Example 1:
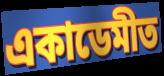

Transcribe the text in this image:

একাডেমীত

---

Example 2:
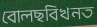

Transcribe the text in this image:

বোলছবিখনত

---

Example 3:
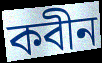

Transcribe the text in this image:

কবীন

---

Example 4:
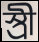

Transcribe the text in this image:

স্ত্ৰী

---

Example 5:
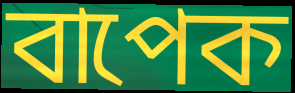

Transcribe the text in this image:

বাপেক